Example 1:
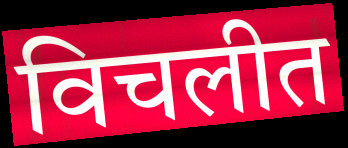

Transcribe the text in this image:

विचलीत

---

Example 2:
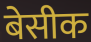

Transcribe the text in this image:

बेसीक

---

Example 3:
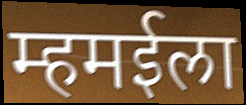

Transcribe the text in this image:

म्हमईला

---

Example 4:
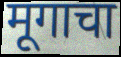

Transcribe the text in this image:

मूगाचा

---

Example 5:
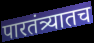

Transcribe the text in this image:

पारतंत्र्यातच